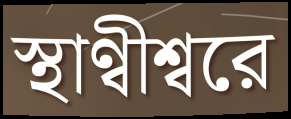
স্থাণ্বীশ্বরে